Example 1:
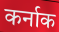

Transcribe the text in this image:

कर्नाक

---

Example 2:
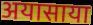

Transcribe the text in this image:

अयासाया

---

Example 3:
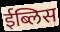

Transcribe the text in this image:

ईब्लिस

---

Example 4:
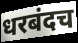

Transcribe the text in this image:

धरबंदच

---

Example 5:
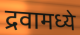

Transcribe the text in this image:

द्रवामध्ये